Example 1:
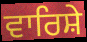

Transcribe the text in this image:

ਵਾਰਿਸ਼ੇ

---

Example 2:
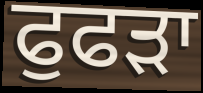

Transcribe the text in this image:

ਫੁਫੜਾ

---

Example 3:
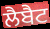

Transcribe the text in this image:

ਲੈਬੈਟ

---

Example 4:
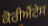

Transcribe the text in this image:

ਕੋਰੀਐਂਟੇਸ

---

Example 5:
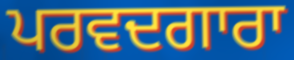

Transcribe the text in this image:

ਪਰਵਦਗਾਰਾ